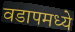
वडापमध्ये